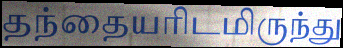
தந்தையரிடமிருந்து